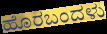
ಹೊರಬಂದಳು